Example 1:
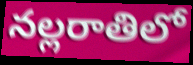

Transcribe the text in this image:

నల్లరాతిలో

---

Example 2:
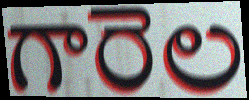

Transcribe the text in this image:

గారెల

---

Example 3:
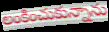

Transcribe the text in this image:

లంకించుకున్నాను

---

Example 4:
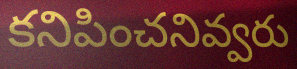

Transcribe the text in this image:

కనిపించనివ్వరు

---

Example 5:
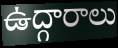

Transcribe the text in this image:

ఉద్గారాలు